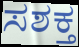
ಸಶಕ್ತ